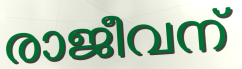
രാജീവന്